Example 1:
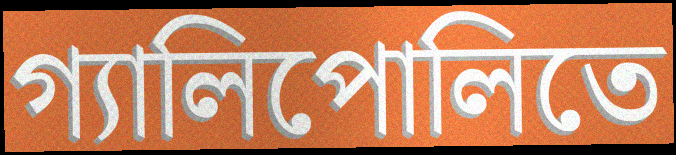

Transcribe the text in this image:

গ্যালিপোলিতে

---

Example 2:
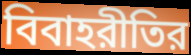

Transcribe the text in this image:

বিবাহরীতির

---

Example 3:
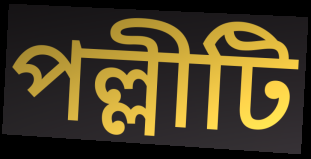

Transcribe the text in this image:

পল্লীটি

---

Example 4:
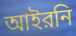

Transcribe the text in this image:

আইরনি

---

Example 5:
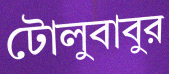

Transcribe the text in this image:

টোলুবাবুর